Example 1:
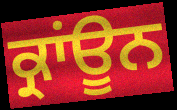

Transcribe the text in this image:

ਕ੍ਰਾਂਊਨ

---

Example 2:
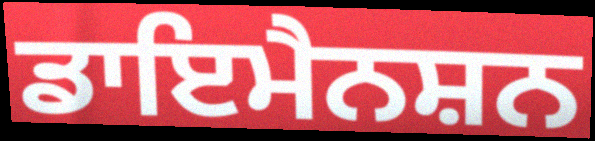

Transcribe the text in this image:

ਡਾਇਮੈਨਸ਼ਨ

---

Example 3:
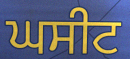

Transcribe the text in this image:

ਘਸੀਟ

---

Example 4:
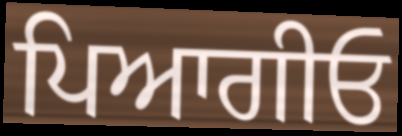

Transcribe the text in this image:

ਪਿਆਗੀਓ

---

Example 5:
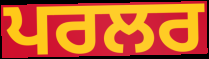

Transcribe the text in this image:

ਪਰਲਰ